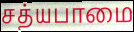
சத்யபாமை